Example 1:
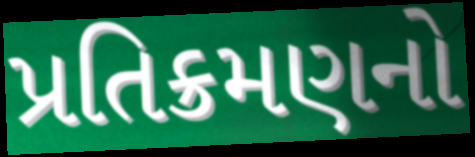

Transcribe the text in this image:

પ્રતિક્રમણનો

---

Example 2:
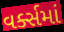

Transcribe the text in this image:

વર્ક્સમાં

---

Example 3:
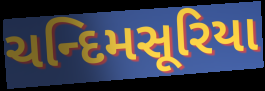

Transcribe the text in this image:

ચન્દિમસૂરિયા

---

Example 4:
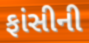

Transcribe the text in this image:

ફાંસીની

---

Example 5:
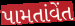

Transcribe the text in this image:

પામતાંવેંત